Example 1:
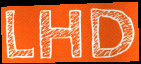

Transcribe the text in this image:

LHD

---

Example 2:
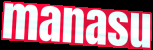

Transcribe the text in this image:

manasu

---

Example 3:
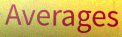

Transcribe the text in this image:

Averages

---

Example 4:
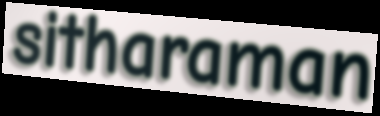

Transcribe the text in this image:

sitharaman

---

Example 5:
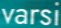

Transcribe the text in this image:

varsi